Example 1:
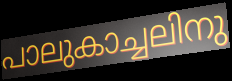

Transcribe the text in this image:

പാലുകാച്ചലിനു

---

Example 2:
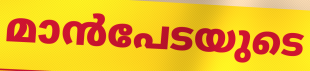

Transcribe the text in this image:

മാൻപേടയുടെ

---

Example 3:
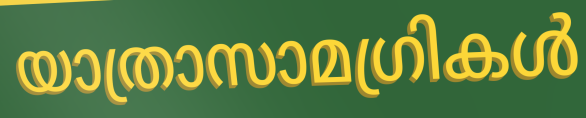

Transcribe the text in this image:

യാത്രാസാമഗ്രികൾ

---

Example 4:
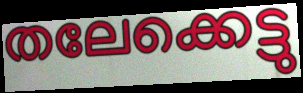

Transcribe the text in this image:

തലേക്കെട്ടു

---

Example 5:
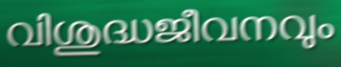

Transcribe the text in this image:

വിശുദ്ധജീവനവും